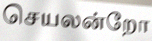
செயலன்றோ